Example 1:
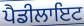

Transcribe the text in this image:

ਪੈਡੀਲਾਇਟ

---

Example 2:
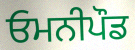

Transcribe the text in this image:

ਓਮਨੀਪੌਡ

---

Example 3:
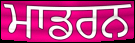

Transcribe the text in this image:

ਮਾਡਰਨ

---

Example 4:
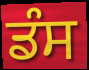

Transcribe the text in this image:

ਡੰਸ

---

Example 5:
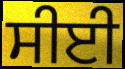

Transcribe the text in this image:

ਸੀਈ